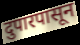
दुपारपासून